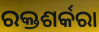
ରକ୍ତଶର୍କରା